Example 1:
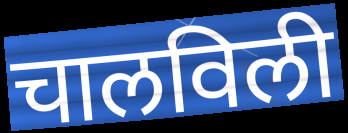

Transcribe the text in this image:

चालविली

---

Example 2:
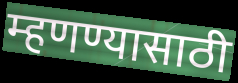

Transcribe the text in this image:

म्हणण्यासाठी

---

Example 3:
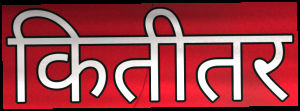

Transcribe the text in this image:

कितीतर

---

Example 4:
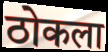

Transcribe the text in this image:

ठोकला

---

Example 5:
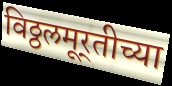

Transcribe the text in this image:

विठ्ठलमूर्तीच्या